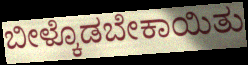
ಬೀಳ್ಕೊಡಬೇಕಾಯಿತು